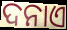
ଦନାଏ